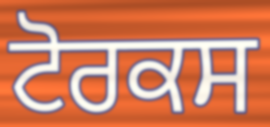
ਟੋਰਕਸ